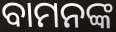
ବାମନଙ୍କ